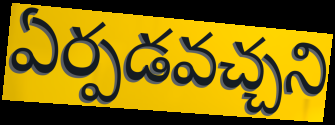
ఏర్పడవచ్చని